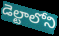
డెల్టాలోని